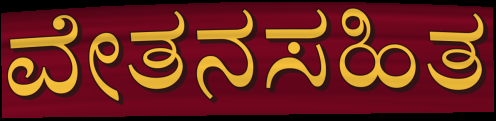
ವೇತನಸಹಿತ